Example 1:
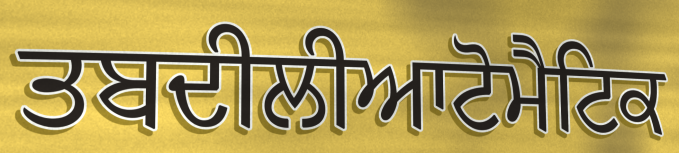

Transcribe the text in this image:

ਤਬਦੀਲੀਆਟੋਮੈਟਿਕ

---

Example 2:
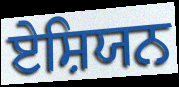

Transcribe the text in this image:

ਏਸ਼ਿਯਨ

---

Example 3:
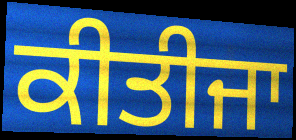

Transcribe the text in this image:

ਕੀਤੀਜਾ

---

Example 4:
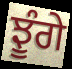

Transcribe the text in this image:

ਝੂੰਗੇ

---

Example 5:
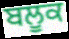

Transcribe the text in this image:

ਬਲੂਕ